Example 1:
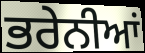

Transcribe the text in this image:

ਭਰੇਨੀਆਂ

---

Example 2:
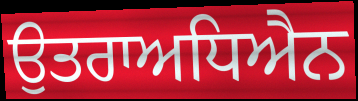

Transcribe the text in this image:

ਉਤਰਾਅਧਿਐਨ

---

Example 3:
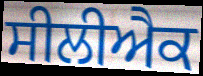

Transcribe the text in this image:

ਸੀਲੀਐਕ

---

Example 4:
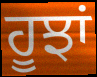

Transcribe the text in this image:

ਹੂਝਾਂ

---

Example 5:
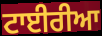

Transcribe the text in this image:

ਟਾਈਰੀਆ